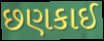
છણકાઈ